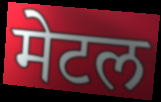
मेटल